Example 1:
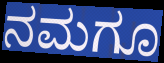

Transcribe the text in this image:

ನಮಗೂ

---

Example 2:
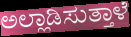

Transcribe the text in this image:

ಅಲ್ಲಾಡಿಸುತ್ತಾಳೆ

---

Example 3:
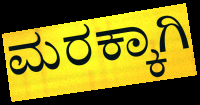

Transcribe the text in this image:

ಮರಕ್ಕಾಗಿ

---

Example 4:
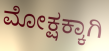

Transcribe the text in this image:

ಮೋಕ್ಷಕ್ಕಾಗಿ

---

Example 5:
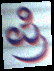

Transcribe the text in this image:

ಪ್ರಿ